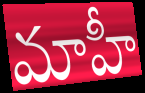
మాహీ